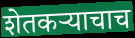
शेतकऱ्याचाच